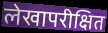
लेखापरीक्षित